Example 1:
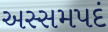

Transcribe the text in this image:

અસ્સમપદં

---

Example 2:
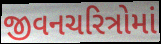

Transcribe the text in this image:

જીવનચરિત્રોમાં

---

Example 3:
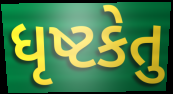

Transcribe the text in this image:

ધૃષ્ટકેતુ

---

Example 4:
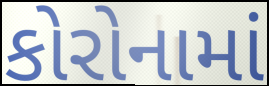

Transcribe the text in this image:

કોરોનામાં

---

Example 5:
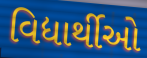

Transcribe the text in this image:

વિદ્યાર્થીઓ